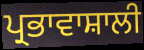
ਪ੍ਰਭਾਵਾਸ਼ਾਲੀ